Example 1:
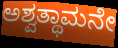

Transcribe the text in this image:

ಅಶ್ವತ್ಥಾಮನೇ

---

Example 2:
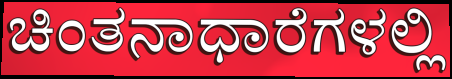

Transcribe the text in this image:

ಚಿಂತನಾಧಾರೆಗಳಲ್ಲಿ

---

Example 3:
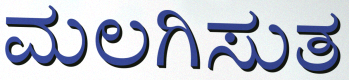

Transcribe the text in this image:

ಮಲಗಿಸುತ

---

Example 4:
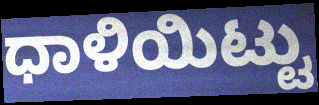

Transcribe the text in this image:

ಧಾಳಿಯಿಟ್ಟು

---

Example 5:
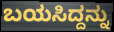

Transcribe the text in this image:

ಬಯಸಿದ್ದನ್ನು